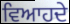
ਵਿਆਹਦੇ